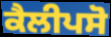
ਕੈਲੀਪਸੋ